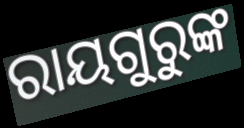
ରାୟଗୁରୁଙ୍କ